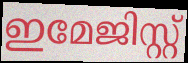
ഇമേജിസ്റ്റ്